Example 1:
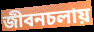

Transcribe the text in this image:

জীবনচলায়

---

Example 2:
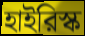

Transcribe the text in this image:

হাইরিস্ক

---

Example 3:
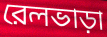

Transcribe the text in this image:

রেলভাড়া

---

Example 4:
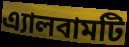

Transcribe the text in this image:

এ্যালবামটি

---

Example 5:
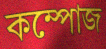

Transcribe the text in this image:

কম্পোজ